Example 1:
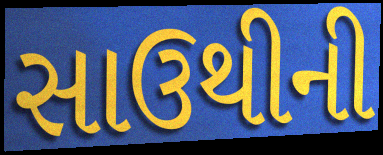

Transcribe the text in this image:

સાઉથીની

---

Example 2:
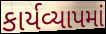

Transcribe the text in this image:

કાર્યવ્યાપમાં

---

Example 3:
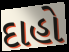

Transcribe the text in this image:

દાહો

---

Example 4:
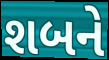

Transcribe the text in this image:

શબને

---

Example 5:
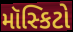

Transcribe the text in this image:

મૉસ્કિટો